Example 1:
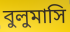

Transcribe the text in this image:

বুলুমাসি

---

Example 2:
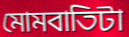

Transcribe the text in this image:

মোমবাতিটা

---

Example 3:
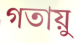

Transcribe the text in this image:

গতায়ু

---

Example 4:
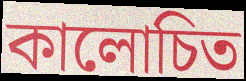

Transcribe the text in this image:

কালোচিত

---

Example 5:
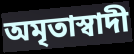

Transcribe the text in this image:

অমৃতাস্বাদী